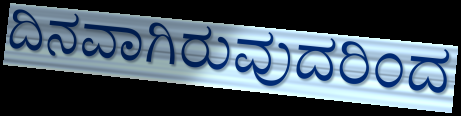
ದಿನವಾಗಿರುವುದರಿಂದ